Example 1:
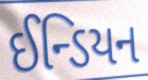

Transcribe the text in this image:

ઈન્ડિયન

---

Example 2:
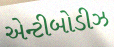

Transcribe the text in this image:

એન્ટીબોડીઝ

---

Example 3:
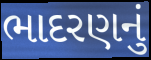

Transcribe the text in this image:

ભાદરણનું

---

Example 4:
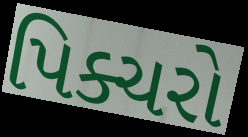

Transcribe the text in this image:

પિક્ચરો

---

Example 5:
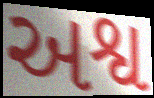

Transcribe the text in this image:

અશ્વ